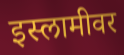
इस्लामीवर